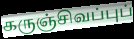
கருஞ்சிவப்புப்